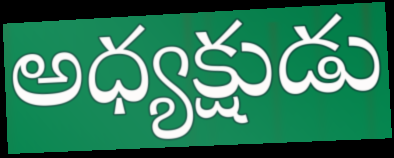
అధ్యక్షుడు